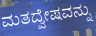
ಮತದ್ವೇಷವನ್ನು